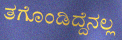
ತಗೊಂಡಿದ್ದೆನಲ್ಲ